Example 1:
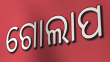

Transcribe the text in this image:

ଗୋଲାପ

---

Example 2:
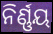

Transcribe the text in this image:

ନିର୍ଣ୍ଣୟ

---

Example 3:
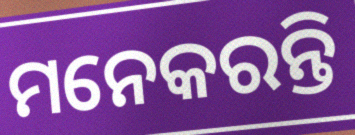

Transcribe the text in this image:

ମନେକରନ୍ତି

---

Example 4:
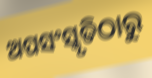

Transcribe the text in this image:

ଅପସଂସ୍କୃତିଠାରୁ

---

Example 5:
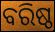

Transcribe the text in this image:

ବରିଷ୍ଠ